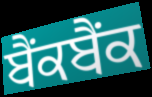
ਬੈਂਕਬੈਂਕ